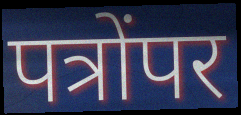
पत्रोंपर